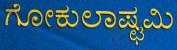
ಗೋಕುಲಾಷ್ಟಮಿ